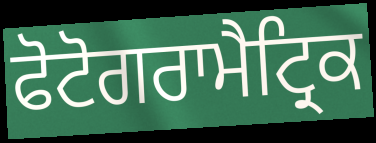
ਫੋਟੋਗਰਾਮੈਟ੍ਰਿਕ